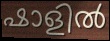
ഷാളിൽ